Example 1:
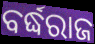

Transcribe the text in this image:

ବର୍ଦ୍ଧରାଜ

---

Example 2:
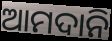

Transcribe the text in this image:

ଆମଦାନି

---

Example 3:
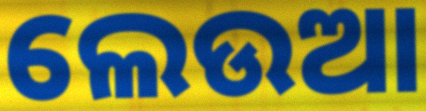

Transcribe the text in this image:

ଲେଉଆ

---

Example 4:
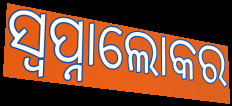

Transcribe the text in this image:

ସ୍ୱପ୍ନାଲୋକର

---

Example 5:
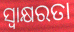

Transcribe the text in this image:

ସ୍ବାକ୍ଷରତା